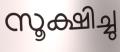
സൂക്ഷിച്ചു